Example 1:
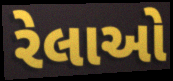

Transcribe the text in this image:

રેલાઓ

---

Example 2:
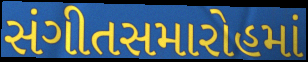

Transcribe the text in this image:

સંગીતસમારોહમાં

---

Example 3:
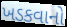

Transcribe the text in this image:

ખડકવાનો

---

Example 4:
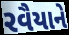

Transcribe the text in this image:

રવૈયાને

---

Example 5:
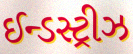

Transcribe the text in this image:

ઈન્ડસ્ટ્રીઝ